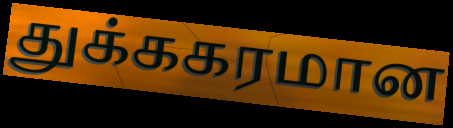
துக்ககரமான